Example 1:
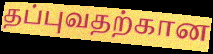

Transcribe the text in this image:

தப்புவதற்கான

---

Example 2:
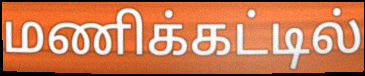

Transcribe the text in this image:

மணிக்கட்டில்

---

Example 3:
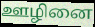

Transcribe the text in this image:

ஊழினை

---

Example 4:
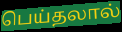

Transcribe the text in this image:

பெய்தலால்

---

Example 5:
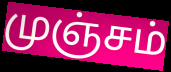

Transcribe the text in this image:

முஞ்சம்